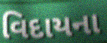
વિદાયના